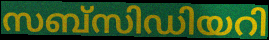
സബ്സിഡിയറി